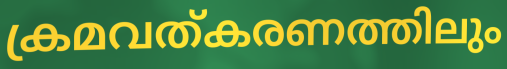
ക്രമവത്കരണത്തിലും